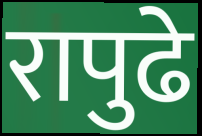
रापुढे